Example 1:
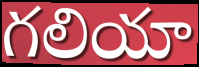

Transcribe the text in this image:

గలియా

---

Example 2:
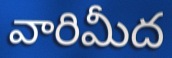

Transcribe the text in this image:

వారిమీద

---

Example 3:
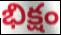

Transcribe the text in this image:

భిక్షం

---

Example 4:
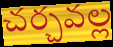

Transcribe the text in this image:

చర్చవల్ల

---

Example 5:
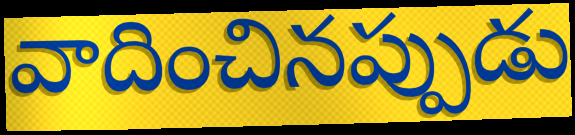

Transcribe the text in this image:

వాదించినప్పుడు